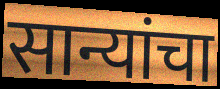
सान्यांचा